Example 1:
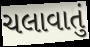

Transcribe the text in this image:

ચલાવાતું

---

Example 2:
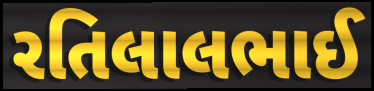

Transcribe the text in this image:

રતિલાલભાઈ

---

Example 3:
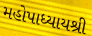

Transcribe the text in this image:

મહોપાધ્યાયશ્રી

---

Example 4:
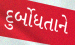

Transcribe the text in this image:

દુર્બોધતાને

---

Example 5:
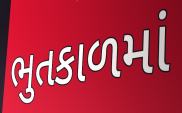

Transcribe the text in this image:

ભુતકાળમાં